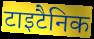
टाइटैनिक